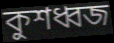
কুশধ্বজ